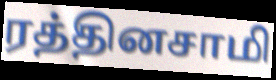
ரத்தினசாமி